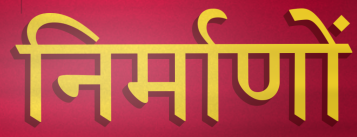
निर्माणों